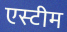
एस्टीम